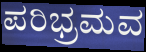
ಪರಿಭ್ರಮವ